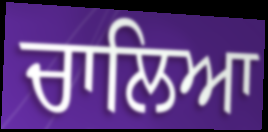
ਚਾਲਿਆ